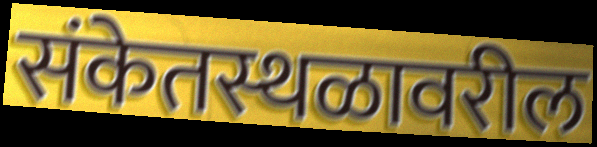
संकेतस्थळावरील